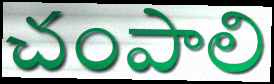
చంపాలి